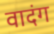
वादंग